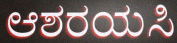
ಆಶರಯಸಿ